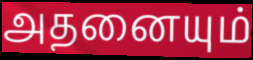
அதனையும்